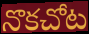
నొకచోట